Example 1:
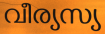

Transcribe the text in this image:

വീര്യസ്യ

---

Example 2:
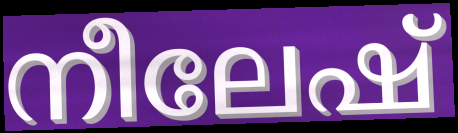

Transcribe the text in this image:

നീലേഷ്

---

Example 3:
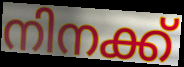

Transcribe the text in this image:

നിനക്ക്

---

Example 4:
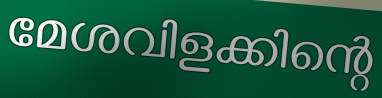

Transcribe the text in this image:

മേശവിളക്കിന്റെ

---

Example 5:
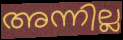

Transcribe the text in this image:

അന്നില്ല